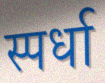
स्पर्धा